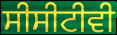
ਸੀਸੀਟੀਵੀ